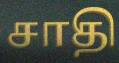
சாதி